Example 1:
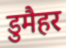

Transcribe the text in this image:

डुमैहर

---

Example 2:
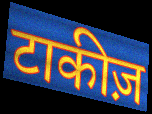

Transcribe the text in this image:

टाकीज़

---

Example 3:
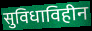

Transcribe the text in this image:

सुविधाविहीन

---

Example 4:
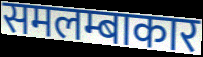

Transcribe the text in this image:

समलम्बाकार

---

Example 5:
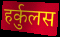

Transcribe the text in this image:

हर्कुलस